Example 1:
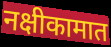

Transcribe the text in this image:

नक्षीकामात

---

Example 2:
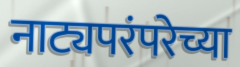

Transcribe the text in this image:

नाट्यपरंपरेच्या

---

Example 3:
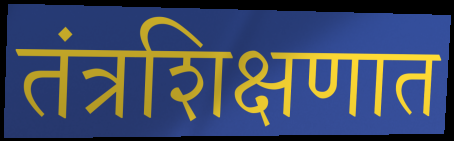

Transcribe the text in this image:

तंत्रशिक्षणात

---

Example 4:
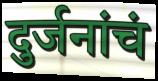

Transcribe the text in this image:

दुर्जनांचं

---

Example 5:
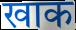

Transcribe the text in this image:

खाक